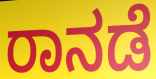
ರಾನಡೆ